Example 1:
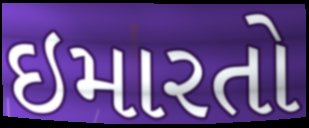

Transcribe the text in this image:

ઇમારતો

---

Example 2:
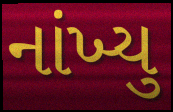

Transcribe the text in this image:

નાંખ્યુ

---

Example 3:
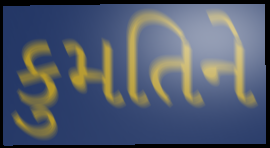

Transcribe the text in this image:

કુમતિને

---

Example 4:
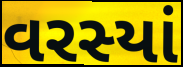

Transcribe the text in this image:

વરસ્યાં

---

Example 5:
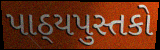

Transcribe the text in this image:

પાઠ્યપુસ્તકો